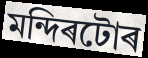
মন্দিৰটোৰ